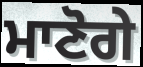
ਮਾਣੋਗੇ